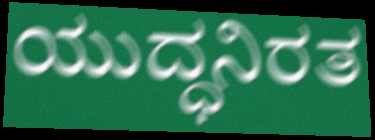
ಯುದ್ಧನಿರತ